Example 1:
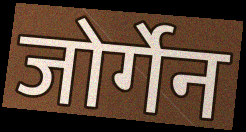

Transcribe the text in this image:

जोर्गेन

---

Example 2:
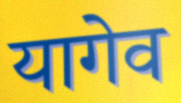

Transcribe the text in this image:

यागेव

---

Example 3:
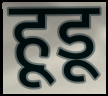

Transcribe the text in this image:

हूडू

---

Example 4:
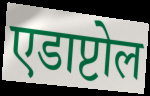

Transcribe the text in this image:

एडाप्टोल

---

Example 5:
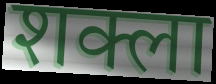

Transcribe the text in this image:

शक्ला